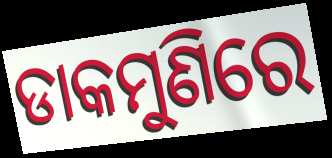
ଡାକମୁଣିରେ